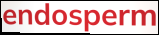
endosperm